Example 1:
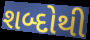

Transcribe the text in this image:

શબ્દોથી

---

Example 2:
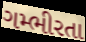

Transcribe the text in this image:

ગમ્ભીરતા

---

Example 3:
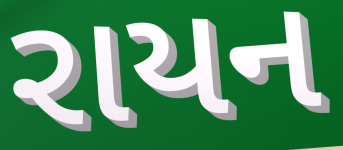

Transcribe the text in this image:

રાયન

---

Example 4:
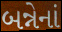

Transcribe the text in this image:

બન્નેનાં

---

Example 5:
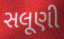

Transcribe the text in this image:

સલૂણી